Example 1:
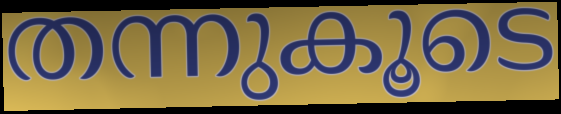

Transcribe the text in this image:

തന്നുകൂടെ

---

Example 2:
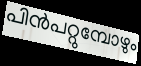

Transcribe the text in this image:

പിൻപറ്റുമ്പോഴും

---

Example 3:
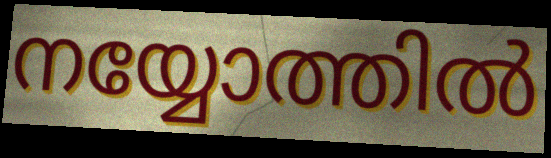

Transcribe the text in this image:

നയ്യോത്തിൽ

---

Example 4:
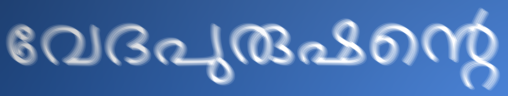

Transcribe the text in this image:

വേദപുരുഷന്റെ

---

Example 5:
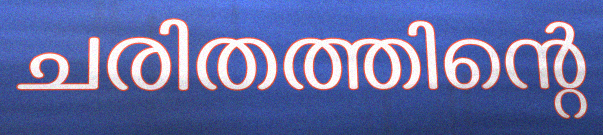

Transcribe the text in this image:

ചരിതത്തിന്റെ